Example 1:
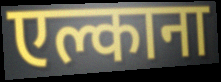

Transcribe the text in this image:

एल्काना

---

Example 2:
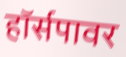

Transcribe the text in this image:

हॉर्सपावर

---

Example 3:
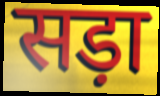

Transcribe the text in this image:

सड़ा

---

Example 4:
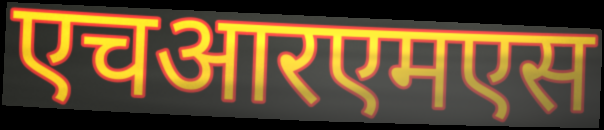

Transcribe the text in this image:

एचआरएमएस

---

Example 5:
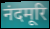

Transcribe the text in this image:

नंदमूरि